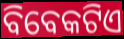
ବିବେକଟିଏ